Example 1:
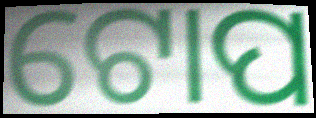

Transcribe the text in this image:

ଟୋପ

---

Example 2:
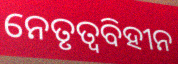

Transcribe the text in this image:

ନେତୃତ୍ୱବିହୀନ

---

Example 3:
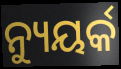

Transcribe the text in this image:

ନ୍ୟୁୟର୍କ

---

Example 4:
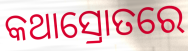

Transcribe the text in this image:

କଥାସ୍ରୋତରେ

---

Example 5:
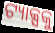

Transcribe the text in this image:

ଟ୍ୟାକ୍ସକୁ